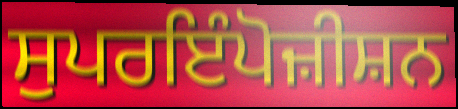
ਸੁਪਰਇੰਪੋਜ਼ੀਸ਼ਨ